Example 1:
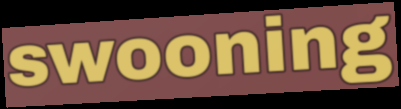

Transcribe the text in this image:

swooning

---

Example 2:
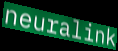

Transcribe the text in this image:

neuralink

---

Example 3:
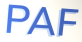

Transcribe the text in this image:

PAF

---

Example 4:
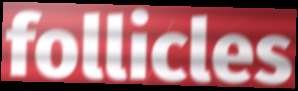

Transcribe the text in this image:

follicles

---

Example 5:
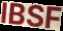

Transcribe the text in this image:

IBSF